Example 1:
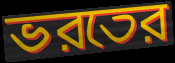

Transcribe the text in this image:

ভরতের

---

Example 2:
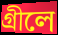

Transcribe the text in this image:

গ্রীলে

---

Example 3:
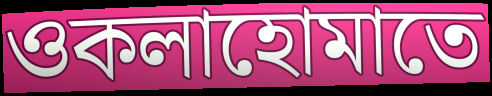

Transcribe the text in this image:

ওকলাহোমাতে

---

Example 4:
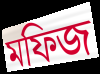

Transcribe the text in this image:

মফিজ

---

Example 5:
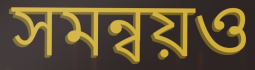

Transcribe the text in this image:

সমন্বয়ও